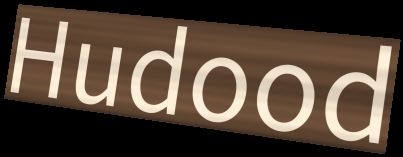
Hudood